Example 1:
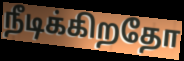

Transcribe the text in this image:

நீடிக்கிறதோ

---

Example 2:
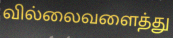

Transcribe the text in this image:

வில்லைவளைத்து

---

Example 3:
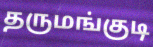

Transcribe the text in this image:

தருமங்குடி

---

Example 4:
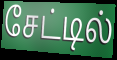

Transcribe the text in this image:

சேட்டில்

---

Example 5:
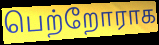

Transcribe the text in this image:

பெற்றோராக